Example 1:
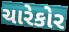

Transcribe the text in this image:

ચારેકોર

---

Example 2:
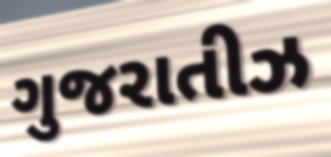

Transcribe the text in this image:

ગુજરાતીઝ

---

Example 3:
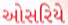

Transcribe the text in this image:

ઓસરિયે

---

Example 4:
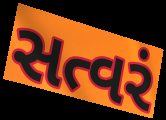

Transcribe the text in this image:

સત્વરં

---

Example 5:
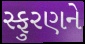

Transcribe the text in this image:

સ્ફુરણને